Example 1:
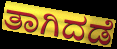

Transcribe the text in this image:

ತಾಗಿದಡೆ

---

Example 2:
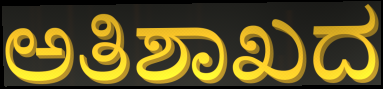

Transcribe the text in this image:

ಅತಿಶಾಖದ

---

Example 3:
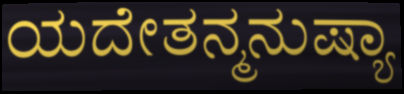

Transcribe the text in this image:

ಯದೇತನ್ಮನುಷ್ಯಾ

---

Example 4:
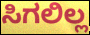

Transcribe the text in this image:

ಸಿಗಲಿಲ್ಲ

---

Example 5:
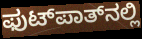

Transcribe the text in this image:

ಫುಟ್‌ಪಾತ್‌ನಲ್ಲಿ